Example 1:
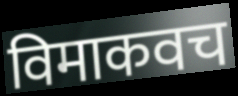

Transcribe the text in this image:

विमाकवच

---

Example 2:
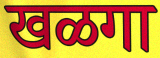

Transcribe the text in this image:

खळगा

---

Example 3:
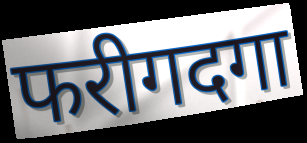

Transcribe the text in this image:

फरीगदगा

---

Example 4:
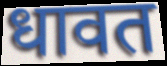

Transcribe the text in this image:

धावत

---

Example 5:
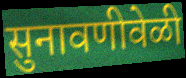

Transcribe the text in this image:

सुनावणीवेळी